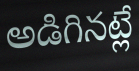
అడిగినట్లే